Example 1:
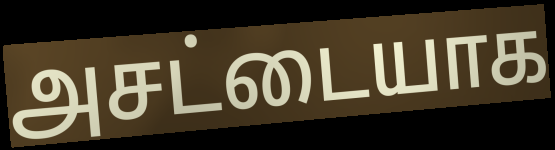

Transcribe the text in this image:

அசட்டையாக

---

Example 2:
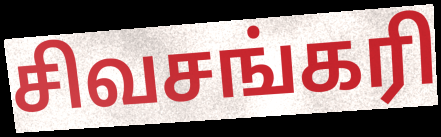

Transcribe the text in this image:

சிவசங்கரி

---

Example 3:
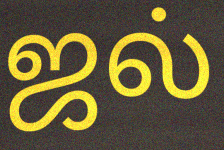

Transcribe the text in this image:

ஜல்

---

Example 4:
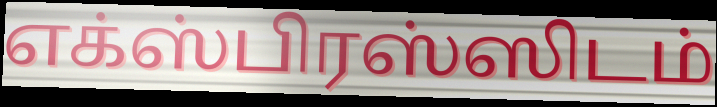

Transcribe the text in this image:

எக்ஸ்பிரஸ்ஸிடம்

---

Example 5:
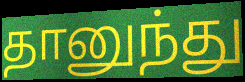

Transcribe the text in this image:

தானுந்து